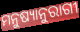
ମନୁଷ୍ୟାନୁରାଗୀ